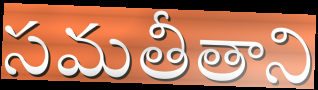
సమతీతాని